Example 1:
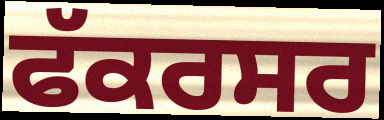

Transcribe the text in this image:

ਫੱਕਰਸਰ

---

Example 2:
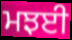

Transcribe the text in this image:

ਮਝਈ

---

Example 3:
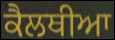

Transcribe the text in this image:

ਕੈਲਥੀਆ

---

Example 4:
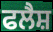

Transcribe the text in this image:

ਫਲੈਸ਼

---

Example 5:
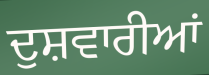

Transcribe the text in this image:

ਦੁਸ਼ਵਾਰੀਆਂ